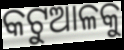
କଟୁଆଳକୁ